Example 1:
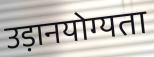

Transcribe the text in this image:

उड़ानयोग्यता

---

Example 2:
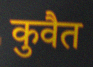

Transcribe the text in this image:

कुवैत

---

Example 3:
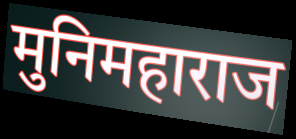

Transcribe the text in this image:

मुनिमहाराज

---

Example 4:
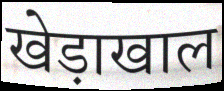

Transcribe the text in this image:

खेड़ाखाल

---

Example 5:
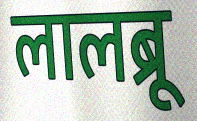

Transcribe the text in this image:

लालब्रू